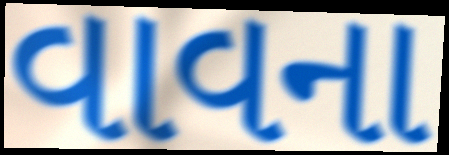
વાવના